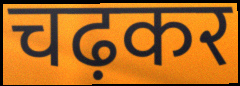
चढ़कर